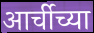
आर्चीच्या